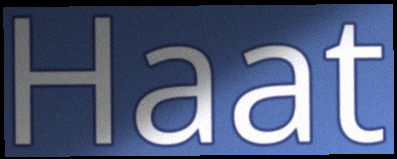
Haat